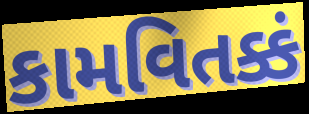
કામવિતક્કં